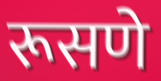
रूसणे